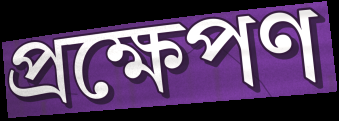
প্ৰক্ষেপণ